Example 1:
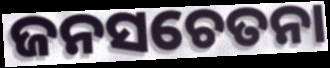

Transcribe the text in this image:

ଜନସଚେତନା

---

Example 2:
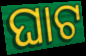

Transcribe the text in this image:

ଘାଟ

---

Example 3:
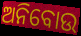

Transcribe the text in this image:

ଅନିବୋଉ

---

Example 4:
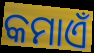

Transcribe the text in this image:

କମାଏଁ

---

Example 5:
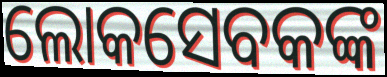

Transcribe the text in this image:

ଲୋକସେବକଙ୍କ